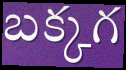
బక్కగ